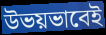
উভয়ভাবেই